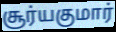
சூர்யகுமார்